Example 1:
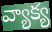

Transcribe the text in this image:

వ్యాక్య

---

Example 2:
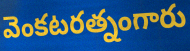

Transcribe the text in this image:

వెంకటరత్నంగారు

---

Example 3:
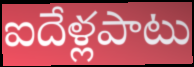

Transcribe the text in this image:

ఐదేళ్లపాటు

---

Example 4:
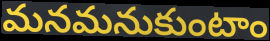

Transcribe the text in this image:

మనమనుకుంటాం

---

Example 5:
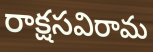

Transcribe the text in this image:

రాక్షసవిరామ